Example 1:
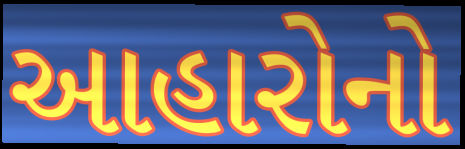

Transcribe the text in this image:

આહારોનો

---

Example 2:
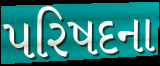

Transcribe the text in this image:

પરિષદના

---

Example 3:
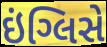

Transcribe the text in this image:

ઇંગ્લિસે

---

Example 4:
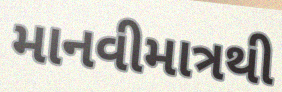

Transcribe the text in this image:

માનવીમાત્રથી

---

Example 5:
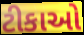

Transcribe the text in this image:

ટીકાઓ